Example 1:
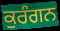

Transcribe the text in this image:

ਕੁਰੰਗਨ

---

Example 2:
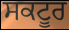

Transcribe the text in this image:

ਸਕਟੂਰ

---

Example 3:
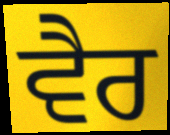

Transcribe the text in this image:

ਵੈਰ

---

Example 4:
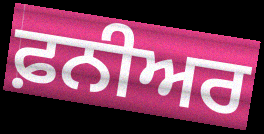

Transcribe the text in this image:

ਫ਼ਨੀਅਰ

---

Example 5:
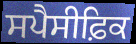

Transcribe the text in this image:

ਸਪੈਸੀਫ਼ਿਕ